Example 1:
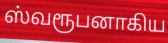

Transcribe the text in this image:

ஸ்வரூபனாகிய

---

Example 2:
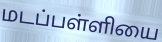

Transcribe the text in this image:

மடப்பள்ளியை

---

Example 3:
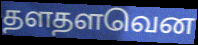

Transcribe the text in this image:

தளதளவென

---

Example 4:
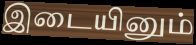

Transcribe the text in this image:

இடையினும்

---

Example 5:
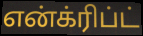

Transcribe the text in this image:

என்க்ரிப்ட்